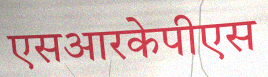
एसआरकेपीएस